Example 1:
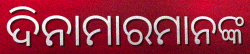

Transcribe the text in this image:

ଦିନାମାରମାନଙ୍କ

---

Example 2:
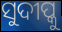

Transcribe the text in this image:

ସୁଦୀପ୍କୁ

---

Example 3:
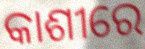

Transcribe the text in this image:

କାଶୀରେ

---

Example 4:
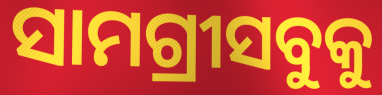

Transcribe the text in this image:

ସାମଗ୍ରୀସବୁକୁ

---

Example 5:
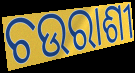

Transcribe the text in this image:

ଚଉରାଶୀ